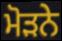
ਮੋੜਨੇ